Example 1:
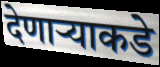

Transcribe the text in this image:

देणाऱ्याकडे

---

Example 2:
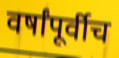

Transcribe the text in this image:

वर्षांपूर्वीच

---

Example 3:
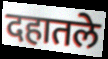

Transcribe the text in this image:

दहातले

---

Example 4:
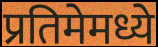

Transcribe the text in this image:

प्रतिमेमध्ये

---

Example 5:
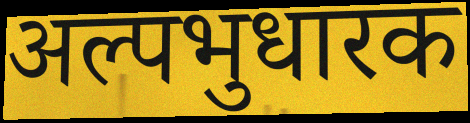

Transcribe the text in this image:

अल्पभुधारक